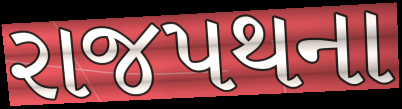
રાજપથના